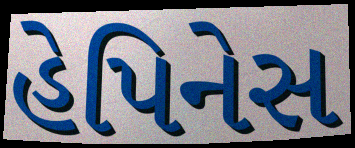
હેપિનેસ